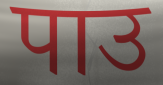
पाउ